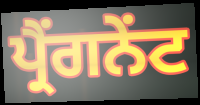
ਪ੍ਰੈਂਗਨੇਂਟ